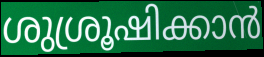
ശുശ്രൂഷിക്കാൻ